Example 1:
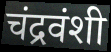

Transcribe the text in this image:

चंद्रवंशी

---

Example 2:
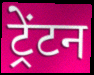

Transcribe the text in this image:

ट्रेंटन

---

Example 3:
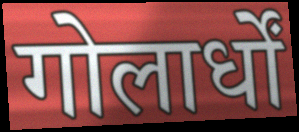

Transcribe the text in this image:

गोलार्धों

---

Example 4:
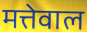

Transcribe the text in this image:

मत्तेवाल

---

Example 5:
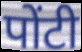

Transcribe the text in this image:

पोंटी